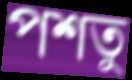
পশতু